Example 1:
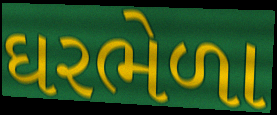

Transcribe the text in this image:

ઘરભેળા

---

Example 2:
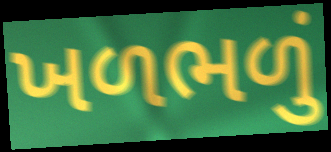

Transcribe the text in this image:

ખળભળું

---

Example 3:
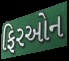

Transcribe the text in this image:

ફિરઓન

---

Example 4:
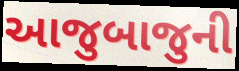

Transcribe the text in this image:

આજુબાજુની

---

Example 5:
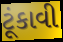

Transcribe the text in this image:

ટૂંકાવી